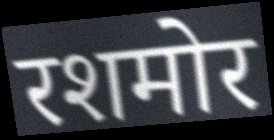
रशमोर